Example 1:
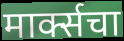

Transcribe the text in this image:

मार्क्सचा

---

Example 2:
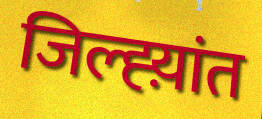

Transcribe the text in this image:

जिल्ह्य़ांत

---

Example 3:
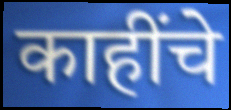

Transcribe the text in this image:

काहींचे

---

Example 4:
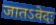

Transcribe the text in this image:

जातऽवेदः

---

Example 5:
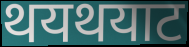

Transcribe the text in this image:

थयथयाट